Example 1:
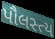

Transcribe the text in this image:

પૌલસ્ત્ય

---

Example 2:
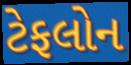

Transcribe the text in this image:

ટેફલોન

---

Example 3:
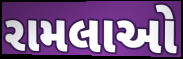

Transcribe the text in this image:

રામલાઓ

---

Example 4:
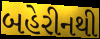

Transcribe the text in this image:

બહેરીનથી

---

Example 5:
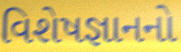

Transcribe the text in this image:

વિશેષજ્ઞાનનો